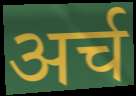
अर्च